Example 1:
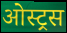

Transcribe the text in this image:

ओस्ट्रस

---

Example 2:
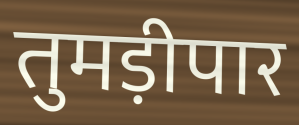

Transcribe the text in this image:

तुमड़ीपार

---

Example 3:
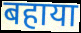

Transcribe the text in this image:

बहाया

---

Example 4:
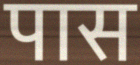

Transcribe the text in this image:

पास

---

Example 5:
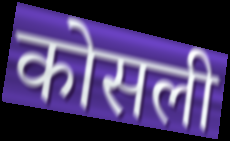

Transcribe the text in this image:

कोसली